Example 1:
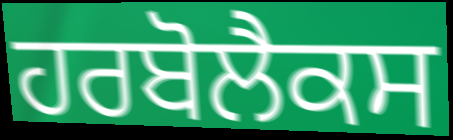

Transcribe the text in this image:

ਹਰਬੋਲੈਕਸ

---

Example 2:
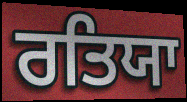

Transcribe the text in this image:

ਰਤਿਯਾ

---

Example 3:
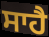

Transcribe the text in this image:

ਸਾਹੈ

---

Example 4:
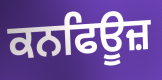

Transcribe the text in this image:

ਕਨਫਿਊਜ਼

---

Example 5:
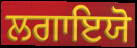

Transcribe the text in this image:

ਲਗਾਇਯੋ